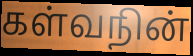
கள்வநின்